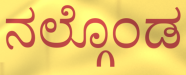
ನಲ್ಗೊಂಡ